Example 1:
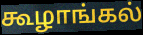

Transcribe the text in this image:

கூழாங்கல்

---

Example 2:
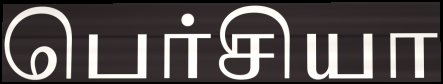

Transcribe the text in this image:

பெர்சியா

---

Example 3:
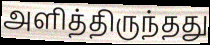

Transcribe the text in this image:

அளித்திருந்தது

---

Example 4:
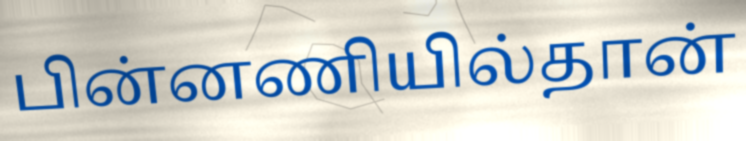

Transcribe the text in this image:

பின்னணியில்தான்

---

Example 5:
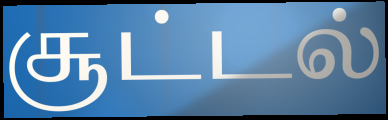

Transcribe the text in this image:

சூட்டல்